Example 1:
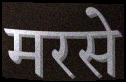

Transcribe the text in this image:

मरसे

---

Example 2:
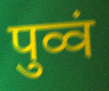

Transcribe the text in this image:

पुव्वं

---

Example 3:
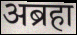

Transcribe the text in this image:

अब्रहा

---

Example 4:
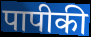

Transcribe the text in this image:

पापीकी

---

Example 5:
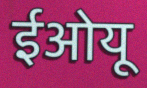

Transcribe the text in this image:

ईओयू